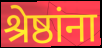
श्रेष्ठांना